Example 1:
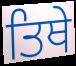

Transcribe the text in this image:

ਤਿਥੇ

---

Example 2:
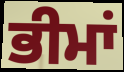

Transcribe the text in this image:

ਭੀਮਾਂ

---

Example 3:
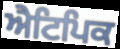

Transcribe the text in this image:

ਐਟਿਪਿਕ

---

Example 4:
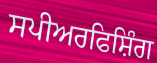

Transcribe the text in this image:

ਸਪੀਅਰਫਿਸ਼ਿੰਗ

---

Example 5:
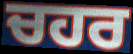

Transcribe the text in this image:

ਚਹਰ